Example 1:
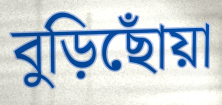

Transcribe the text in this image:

বুড়িছোঁয়া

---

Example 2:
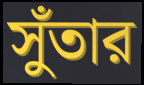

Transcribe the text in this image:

সুঁতার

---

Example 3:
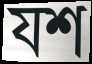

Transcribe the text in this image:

যশ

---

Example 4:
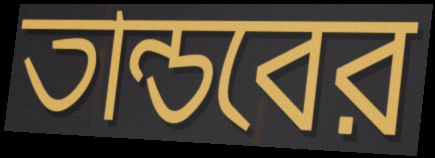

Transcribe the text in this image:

তান্ডবের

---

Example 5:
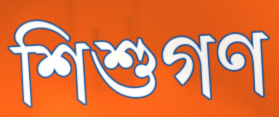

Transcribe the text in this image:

শিশুগণ